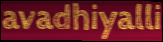
avadhiyalli